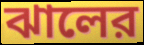
ঝালের